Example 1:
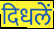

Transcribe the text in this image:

दिधलें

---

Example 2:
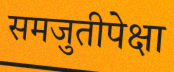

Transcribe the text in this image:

समजुतीपेक्षा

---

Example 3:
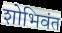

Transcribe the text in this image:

शोभिवंत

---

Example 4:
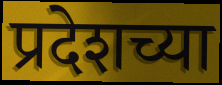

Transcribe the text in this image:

प्रदेशच्या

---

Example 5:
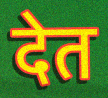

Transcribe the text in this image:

देत